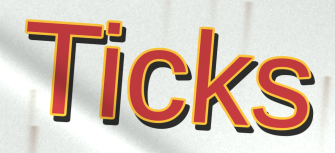
Ticks